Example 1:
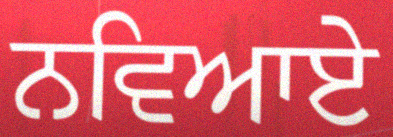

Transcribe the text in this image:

ਨਵਿਆਏ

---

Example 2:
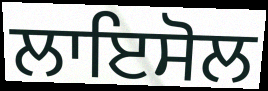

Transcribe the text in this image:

ਲਾਇਸੋਲ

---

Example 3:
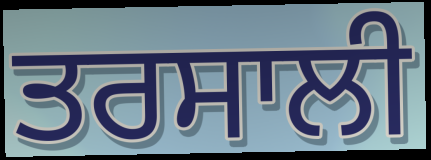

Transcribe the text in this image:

ਤਰਸਾਲੀ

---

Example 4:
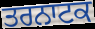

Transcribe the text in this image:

ਤਰਨਾਟਕ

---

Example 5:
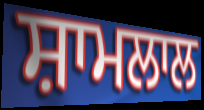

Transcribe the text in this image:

ਸ਼ਾਮਲਾਲ